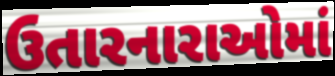
ઉતારનારાઓમાં